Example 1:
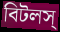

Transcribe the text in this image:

বিটলস্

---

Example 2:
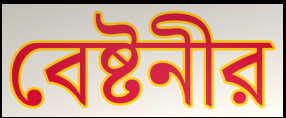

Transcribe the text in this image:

বেষ্টনীর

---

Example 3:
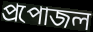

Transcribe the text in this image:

প্রপোজল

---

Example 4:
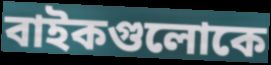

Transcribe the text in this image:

বাইকগুলোকে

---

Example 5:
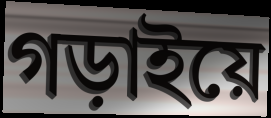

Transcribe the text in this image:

গড়াইয়ে